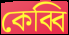
কেব্বি